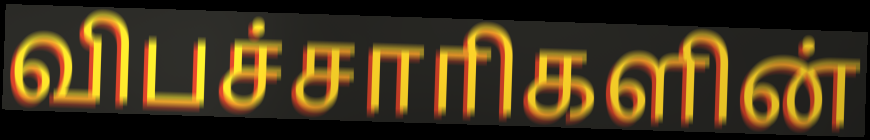
விபச்சாரிகளின்